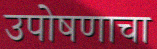
उपोषणाचा